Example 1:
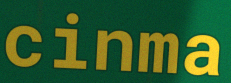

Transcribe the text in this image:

cinma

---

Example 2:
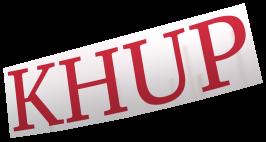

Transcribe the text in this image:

KHUP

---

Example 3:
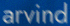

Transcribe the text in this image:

arvind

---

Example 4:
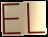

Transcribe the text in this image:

EL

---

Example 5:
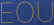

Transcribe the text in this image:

EOU